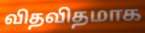
விதவிதமாக